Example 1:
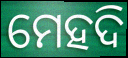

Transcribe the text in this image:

ମେହଦି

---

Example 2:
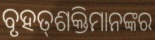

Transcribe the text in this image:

ବୃହତ୍‌ଶକ୍ତିମାନଙ୍କର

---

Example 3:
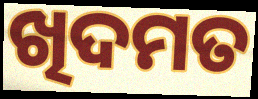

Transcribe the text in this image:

ଖିଦମତ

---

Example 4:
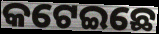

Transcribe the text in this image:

କଟେଇଛେ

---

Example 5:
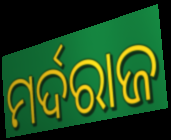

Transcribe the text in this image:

ମର୍ଦରାଜ